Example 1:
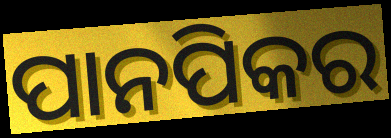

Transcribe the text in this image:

ପାନପିକର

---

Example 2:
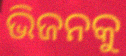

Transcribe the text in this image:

ଭିଜନକୁ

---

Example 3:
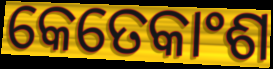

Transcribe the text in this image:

କେତେକାଂଶ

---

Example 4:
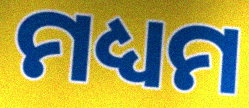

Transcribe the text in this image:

ମଧ୍ୟମ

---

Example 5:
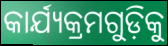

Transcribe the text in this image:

କାର୍ଯ୍ୟକ୍ରମଗୁଡ଼ିକୁ